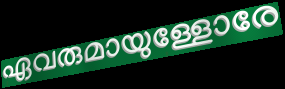
ഏവരുമായുള്ളോരേ